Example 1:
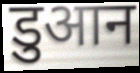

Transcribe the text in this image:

डुआन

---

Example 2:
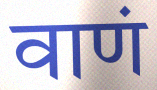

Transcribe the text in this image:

वाणं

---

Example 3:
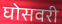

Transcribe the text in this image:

घोसवरी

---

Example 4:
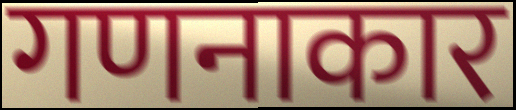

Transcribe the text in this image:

गणनाकार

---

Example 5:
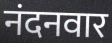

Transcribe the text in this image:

नंदनवार